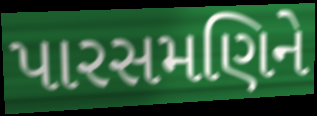
પારસમણિને